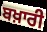
ਬਖ਼ਾਰੀ